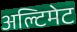
अल्टिमेट